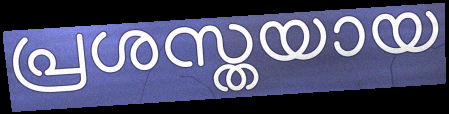
പ്രശസ്തയായ